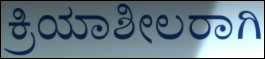
ಕ್ರಿಯಾಶೀಲರಾಗಿ